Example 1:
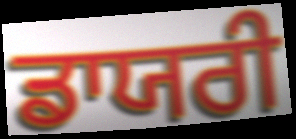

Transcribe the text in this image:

ਡਾਯਰੀ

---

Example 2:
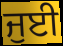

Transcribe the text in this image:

ਜੁਈ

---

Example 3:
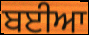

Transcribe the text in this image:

ਬਈਆ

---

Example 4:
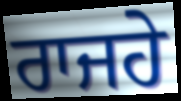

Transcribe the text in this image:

ਰਾਜਹੇ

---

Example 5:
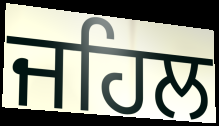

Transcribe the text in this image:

ਜਹਿਲ